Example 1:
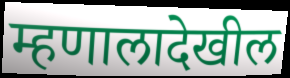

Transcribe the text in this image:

म्हणालादेखील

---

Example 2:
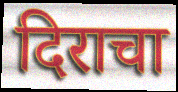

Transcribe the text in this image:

दिराचा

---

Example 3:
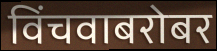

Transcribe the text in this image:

विंचवाबरोबर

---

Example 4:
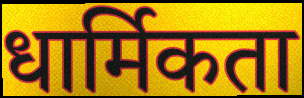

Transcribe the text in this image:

धार्मिकता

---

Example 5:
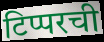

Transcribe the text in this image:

टिप्परची